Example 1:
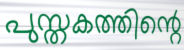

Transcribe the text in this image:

പുസ്തകത്തിന്റെ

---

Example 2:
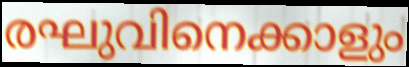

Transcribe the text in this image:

രഘുവിനെക്കാളും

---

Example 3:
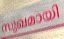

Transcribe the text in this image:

സുഖമായി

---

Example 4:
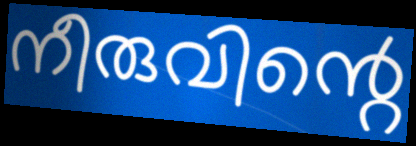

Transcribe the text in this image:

നീരുവിന്റെ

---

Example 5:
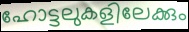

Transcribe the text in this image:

ഹോട്ടലുകളിലേക്കും